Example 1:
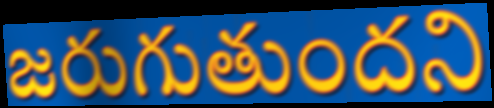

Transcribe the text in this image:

జరుగుతుందని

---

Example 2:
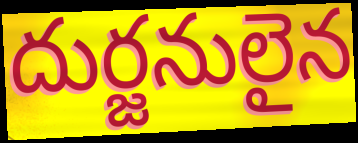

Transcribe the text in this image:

దుర్జనులైన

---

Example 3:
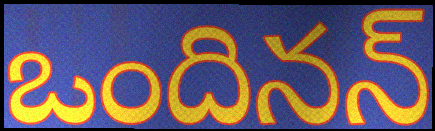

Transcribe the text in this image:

ఒందినన్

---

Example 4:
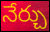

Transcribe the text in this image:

నేర్చు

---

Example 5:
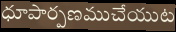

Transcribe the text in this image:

ధూపార్పణముచేయుట